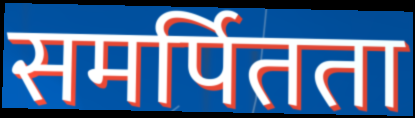
समर्पितता